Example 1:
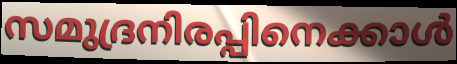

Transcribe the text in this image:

സമുദ്രനിരപ്പിനെക്കാൾ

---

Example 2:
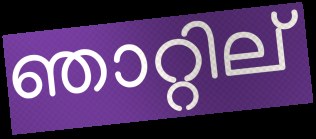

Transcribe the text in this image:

ഞാറ്റില്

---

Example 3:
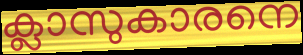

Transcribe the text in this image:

ക്ലാസുകാരനെ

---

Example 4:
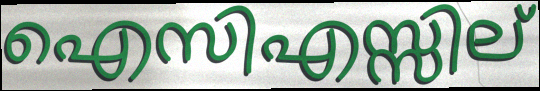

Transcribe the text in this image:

ഐസിഎസ്സില്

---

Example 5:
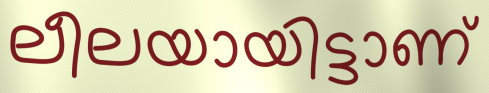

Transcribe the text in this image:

ലീലയായിട്ടാണ്